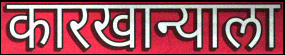
कारखान्याला